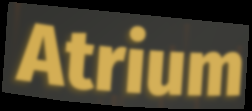
Atrium